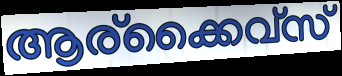
ആര്ക്കൈവ്സ്